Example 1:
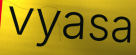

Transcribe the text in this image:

vyasa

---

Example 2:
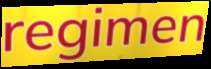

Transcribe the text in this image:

regimen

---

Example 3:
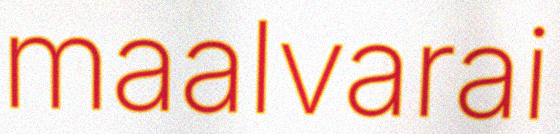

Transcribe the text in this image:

maalvarai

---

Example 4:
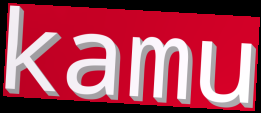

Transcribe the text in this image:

kamu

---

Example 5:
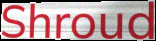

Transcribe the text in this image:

Shroud